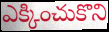
ఎక్కించుకొని